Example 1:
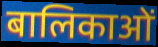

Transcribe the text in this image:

बालिकाओं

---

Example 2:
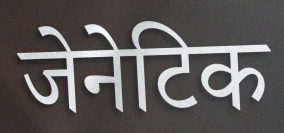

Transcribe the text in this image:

जेनेटिक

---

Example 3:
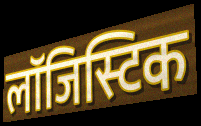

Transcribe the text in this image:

लॉजिस्टिक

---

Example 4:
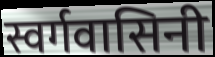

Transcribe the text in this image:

स्वर्गवासिनी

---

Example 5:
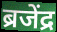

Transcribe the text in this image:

ब्रजेंद्र